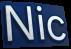
Nic